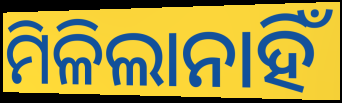
ମିଳିଲାନାହିଁ